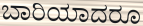
ಬಾರಿಯಾದರೂ